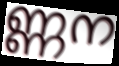
ണ്ണന